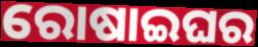
ରୋଷାଇଘର